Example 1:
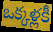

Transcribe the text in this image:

ఒక్కళ్లకీ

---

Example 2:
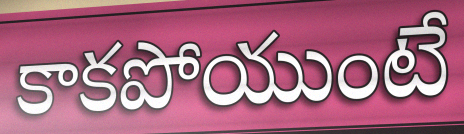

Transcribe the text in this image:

కాకపోయుంటే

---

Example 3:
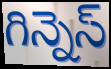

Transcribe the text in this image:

గిన్నెస్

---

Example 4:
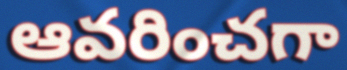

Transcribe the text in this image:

ఆవరించగా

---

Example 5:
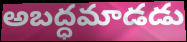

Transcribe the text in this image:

అబద్ధమాడడు